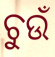
ଚୁଉଁ